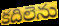
కదిలెను